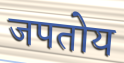
जपतोय